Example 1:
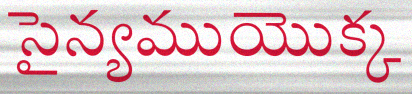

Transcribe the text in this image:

సైన్యముయొక్క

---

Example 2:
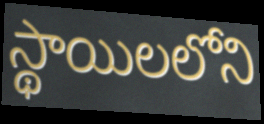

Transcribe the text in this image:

స్థాయిలలోని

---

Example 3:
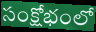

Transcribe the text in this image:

సంక్షోభంలో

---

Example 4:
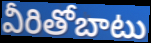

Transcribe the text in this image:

వీరితోబాటు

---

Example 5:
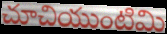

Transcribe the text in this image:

చూచియుంటిమి